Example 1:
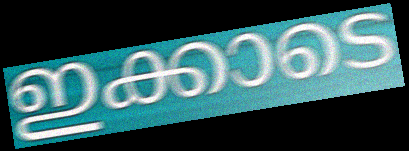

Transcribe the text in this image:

ഇക്കാടെ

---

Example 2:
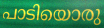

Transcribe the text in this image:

പാടിയൊരു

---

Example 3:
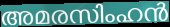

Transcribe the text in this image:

അമരസിംഹൻ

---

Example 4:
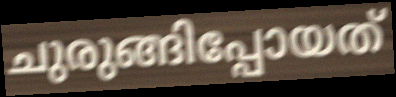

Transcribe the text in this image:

ചുരുങ്ങിപ്പോയത്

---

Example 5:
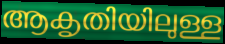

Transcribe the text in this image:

ആകൃതിയിലുള്ള